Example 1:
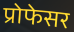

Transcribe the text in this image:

प्रोफेसर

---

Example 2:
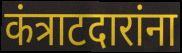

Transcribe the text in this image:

कंत्राटदारांना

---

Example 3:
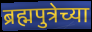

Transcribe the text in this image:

ब्रह्मपुत्रेच्या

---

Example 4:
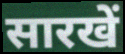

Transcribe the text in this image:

सारखें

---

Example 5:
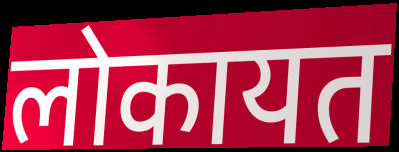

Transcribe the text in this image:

लोकायत